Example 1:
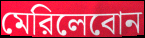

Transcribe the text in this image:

মেরিলেবোন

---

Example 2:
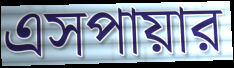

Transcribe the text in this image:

এসপায়ার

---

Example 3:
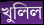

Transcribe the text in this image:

খুলিল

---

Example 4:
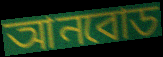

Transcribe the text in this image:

আনবোড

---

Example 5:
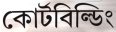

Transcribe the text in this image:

কোর্টবিল্ডিং